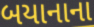
બયાનાના